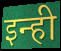
इन्ही